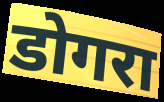
डोगरा